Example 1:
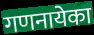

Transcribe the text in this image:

गणनायेका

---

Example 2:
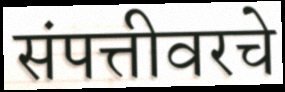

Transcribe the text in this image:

संपत्तीवरचे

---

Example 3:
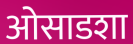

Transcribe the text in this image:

ओसाडशा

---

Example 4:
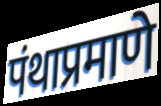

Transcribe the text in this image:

पंथाप्रमाणे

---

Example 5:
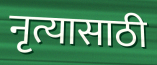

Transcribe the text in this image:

नृत्यासाठी